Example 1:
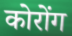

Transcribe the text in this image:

कोरोंग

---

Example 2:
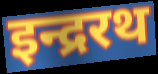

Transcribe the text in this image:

इन्द्ररथ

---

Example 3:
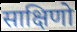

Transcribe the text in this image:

साक्षिणो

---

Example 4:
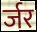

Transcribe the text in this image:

र्जर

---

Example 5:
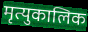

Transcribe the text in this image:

मृत्युकालिक